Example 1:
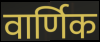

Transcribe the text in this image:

वार्णिक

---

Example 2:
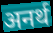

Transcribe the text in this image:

अनर्थ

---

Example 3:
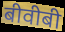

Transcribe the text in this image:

बीवीबी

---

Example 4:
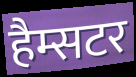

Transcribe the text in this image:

हैम्सटर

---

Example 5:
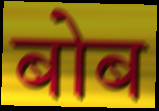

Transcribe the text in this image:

बोब